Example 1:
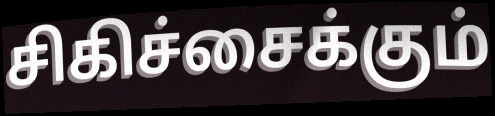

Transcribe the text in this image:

சிகிச்சைக்கும்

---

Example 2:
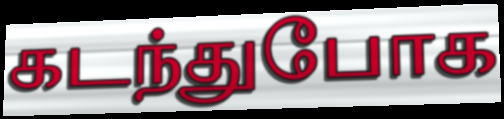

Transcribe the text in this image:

கடந்துபோக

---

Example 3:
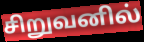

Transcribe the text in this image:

சிறுவனில்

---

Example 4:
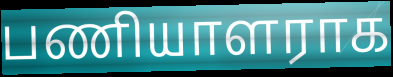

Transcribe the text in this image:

பணியாளராக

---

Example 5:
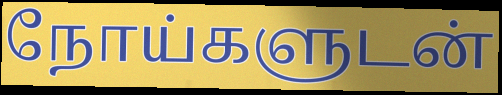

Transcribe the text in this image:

நோய்களுடன்